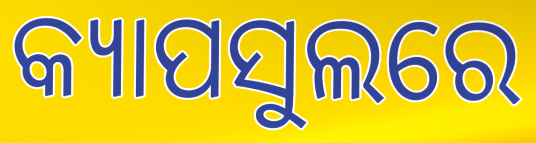
କ୍ୟାପସୁଲରେ